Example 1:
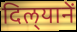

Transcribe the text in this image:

दिल्यानें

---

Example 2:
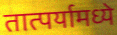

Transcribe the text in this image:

तात्पर्यामध्ये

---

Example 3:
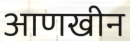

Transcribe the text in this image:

आणखीन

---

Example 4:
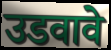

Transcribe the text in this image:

उडवावे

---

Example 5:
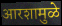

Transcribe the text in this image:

आरशामुळे